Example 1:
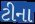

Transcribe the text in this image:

ટીના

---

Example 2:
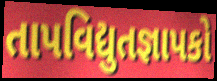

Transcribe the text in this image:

તાપવિદ્યુતજ્ઞાપકો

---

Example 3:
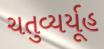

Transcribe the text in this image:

ચતુવ્યર્યૂહ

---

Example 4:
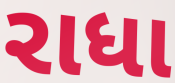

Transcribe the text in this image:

રાધા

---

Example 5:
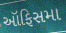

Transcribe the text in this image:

ઑફિસમા